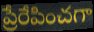
ప్రేరేపించగా